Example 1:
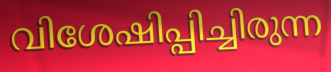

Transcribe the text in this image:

വിശേഷിപ്പിച്ചിരുന്ന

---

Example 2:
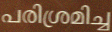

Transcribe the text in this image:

പരിശ്രമിച്ച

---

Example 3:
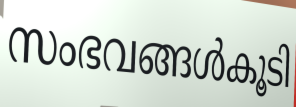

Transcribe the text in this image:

സംഭവങ്ങൾകൂടി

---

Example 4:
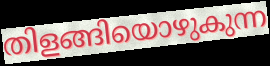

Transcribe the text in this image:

തിളങ്ങിയൊഴുകുന്ന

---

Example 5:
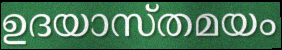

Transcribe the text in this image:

ഉദയാസ്തമയം